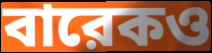
বারেকও